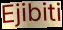
Ejibiti